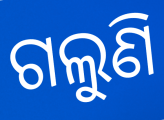
ଗଲୁଣି